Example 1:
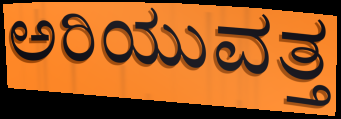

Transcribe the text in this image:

ಅರಿಯುವತ್ತ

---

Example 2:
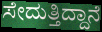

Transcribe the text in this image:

ಸೇದುತ್ತಿದ್ದಾನೆ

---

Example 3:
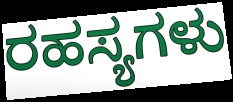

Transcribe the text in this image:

ರಹಸ್ಯಗಳು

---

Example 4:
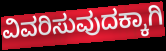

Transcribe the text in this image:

ವಿವರಿಸುವುದಕ್ಕಾಗಿ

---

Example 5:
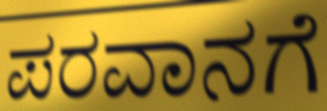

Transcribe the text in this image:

ಪರವಾನಗೆ